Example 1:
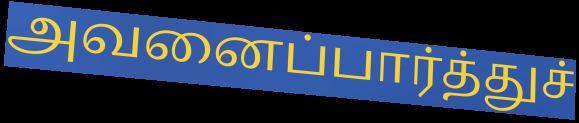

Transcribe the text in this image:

அவனைப்பார்த்துச்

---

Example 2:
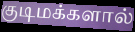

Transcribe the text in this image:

குடிமக்களால்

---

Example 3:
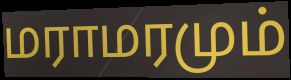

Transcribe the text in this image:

மராமரமும்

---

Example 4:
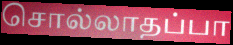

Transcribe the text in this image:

சொல்லாதப்பா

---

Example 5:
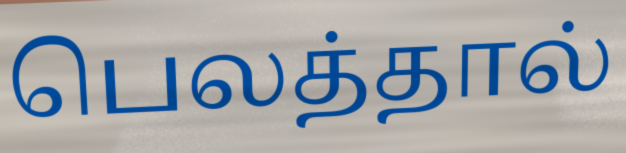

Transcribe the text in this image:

பெலத்தால்